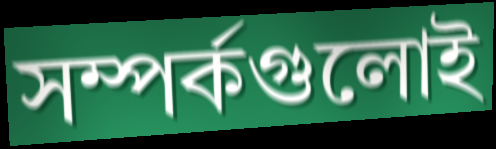
সম্পর্কগুলোই